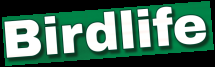
Birdlife